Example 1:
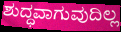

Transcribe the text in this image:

ಶುದ್ಧವಾಗುವುದಿಲ್ಲ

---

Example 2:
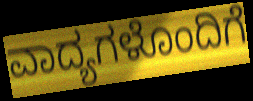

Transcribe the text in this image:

ವಾದ್ಯಗಳೊಂದಿಗೆ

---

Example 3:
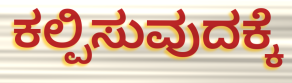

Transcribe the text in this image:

ಕಲ್ಪಿಸುವುದಕ್ಕೆ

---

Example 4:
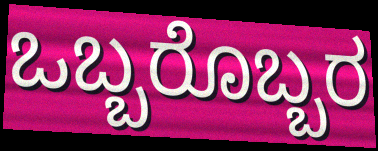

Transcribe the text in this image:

ಒಬ್ಬರೊಬ್ಬರ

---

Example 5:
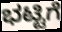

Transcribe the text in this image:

ಭಟ್ಟಿಗೆ